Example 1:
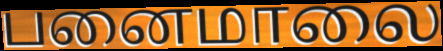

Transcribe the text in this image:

பனைமாலை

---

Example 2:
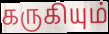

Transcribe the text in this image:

கருகியும்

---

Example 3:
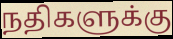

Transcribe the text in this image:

நதிகளுக்கு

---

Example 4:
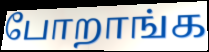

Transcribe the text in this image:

போறாங்க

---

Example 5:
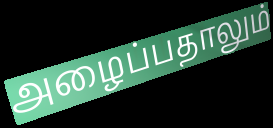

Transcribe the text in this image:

அழைப்பதாலும்